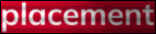
placement